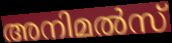
അനിമൽസ്